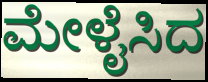
ಮೇಳೈಸಿದ